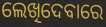
ଲେଖିଦେବାରେ